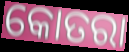
କୋତରା